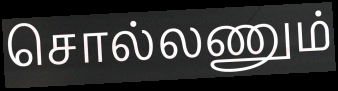
சொல்லணும்